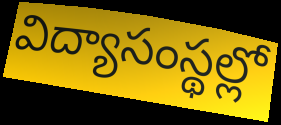
విద్యాసంస్థల్లో